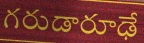
గరుడారూఢే